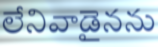
లేనివాడైనను